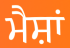
ਮੈਸ਼ਾਂ